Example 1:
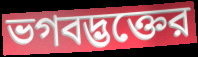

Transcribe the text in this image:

ভগবদ্ভক্তের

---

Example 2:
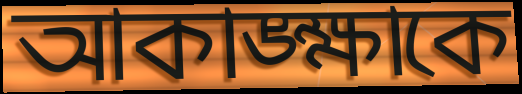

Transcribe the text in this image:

আকাঙ্ক্ষাকে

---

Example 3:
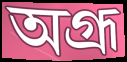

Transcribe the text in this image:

অগ্রূ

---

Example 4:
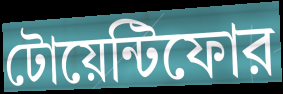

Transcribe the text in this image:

টোয়েন্টিফোর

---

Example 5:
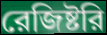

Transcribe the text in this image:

রেজিষ্টরি